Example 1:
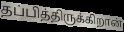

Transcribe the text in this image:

தப்பித்திருக்கிறான்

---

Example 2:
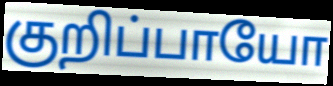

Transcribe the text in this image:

குறிப்பாயோ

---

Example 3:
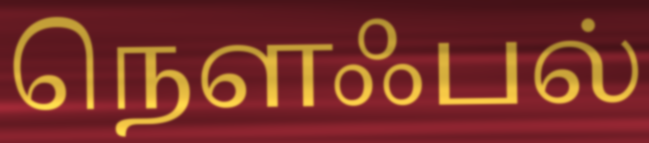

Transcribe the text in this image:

நௌஃபல்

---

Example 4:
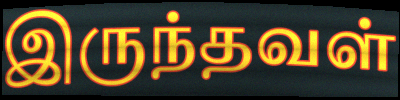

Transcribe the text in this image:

இருந்தவள்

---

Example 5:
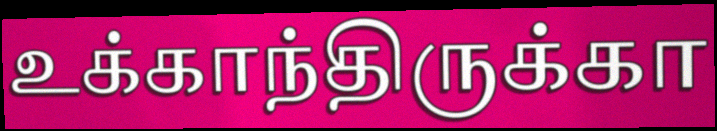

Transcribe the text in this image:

உக்காந்திருக்கா